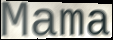
Mama